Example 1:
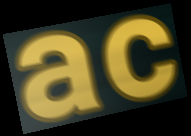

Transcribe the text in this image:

ac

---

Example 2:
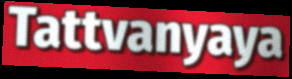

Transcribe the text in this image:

Tattvanyaya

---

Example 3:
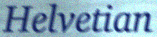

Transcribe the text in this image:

Helvetian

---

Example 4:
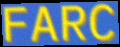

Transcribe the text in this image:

FARC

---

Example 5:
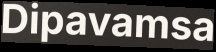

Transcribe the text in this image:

Dipavamsa